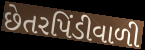
છેતરપિંડીવાળી